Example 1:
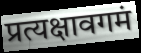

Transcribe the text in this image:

प्रत्यक्षावगमं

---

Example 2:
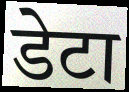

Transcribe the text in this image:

डेटा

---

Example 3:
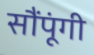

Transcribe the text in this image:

सौंपूंगी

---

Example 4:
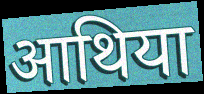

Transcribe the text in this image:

आथिया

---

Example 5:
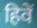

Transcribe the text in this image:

हिवें